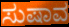
ಸುಷಾವ